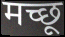
मच्छू